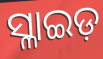
ସ୍ଳାଇଡ଼